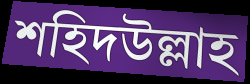
শহিদউল্লাহ